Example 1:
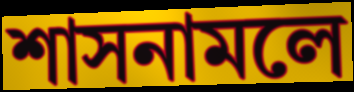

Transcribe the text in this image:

শাসনামলে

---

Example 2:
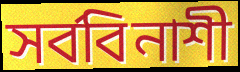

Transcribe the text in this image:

সর্ববিনাশী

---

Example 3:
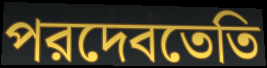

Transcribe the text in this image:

পরদেবতেতি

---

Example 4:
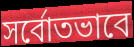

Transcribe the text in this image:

সর্বোতভাবে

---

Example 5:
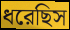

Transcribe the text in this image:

ধরেছিস